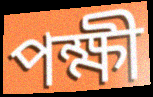
পক্ষী